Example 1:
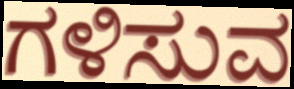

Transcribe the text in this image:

ಗಳಿಸುವ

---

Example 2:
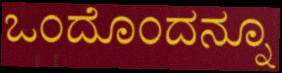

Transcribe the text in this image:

ಒಂದೊಂದನ್ನೂ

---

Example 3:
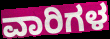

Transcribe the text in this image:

ವಾರಿಗಳ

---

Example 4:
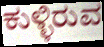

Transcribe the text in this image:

ಕುಳ್ಳಿರುವ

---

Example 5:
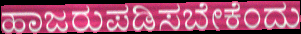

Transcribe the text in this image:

ಹಾಜರುಪಡಿಸಬೇಕೆಂದು